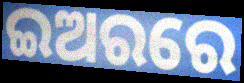
ଇଅରରେ